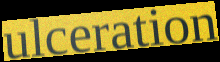
ulceration